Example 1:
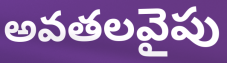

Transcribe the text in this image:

అవతలవైపు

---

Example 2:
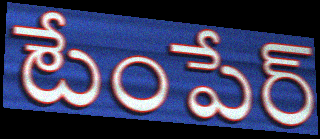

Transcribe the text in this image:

టేంపేర్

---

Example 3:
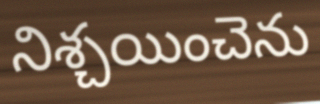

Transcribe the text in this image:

నిశ్చయించెను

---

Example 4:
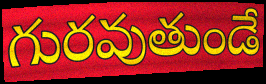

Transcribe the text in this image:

గురవుతుండే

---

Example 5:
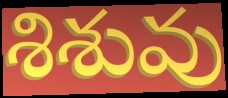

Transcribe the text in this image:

శిశువు